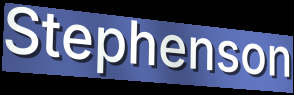
Stephenson